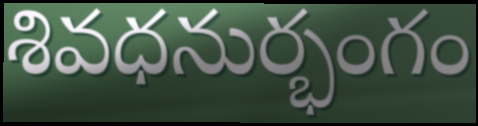
శివధనుర్భంగం